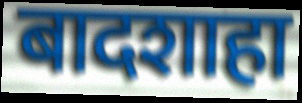
बादशाहा